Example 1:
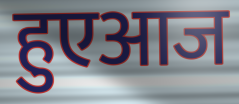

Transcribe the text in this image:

हुएआज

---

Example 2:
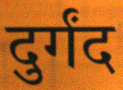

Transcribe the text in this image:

दुर्गंद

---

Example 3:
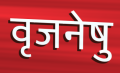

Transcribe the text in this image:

वृजनेषु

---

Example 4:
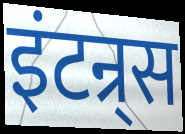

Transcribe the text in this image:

इंटन्र्स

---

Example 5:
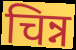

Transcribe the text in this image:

चिन्न